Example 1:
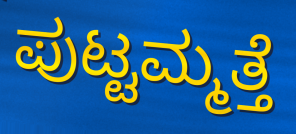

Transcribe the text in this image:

ಪುಟ್ಟಮ್ಮತ್ತೆ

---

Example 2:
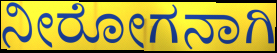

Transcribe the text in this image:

ನೀರೋಗನಾಗಿ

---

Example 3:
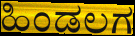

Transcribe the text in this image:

ಹಿಂಡಲಗ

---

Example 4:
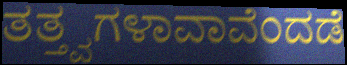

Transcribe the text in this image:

ತತ್ತ್ವಗಳಾವಾವೆಂದಡೆ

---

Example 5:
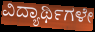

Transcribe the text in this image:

ವಿದ್ಯಾರ್ಥಿಗಳೇ